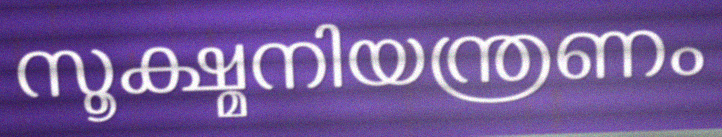
സൂക്ഷ്മനിയന്ത്രണം